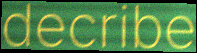
decribe